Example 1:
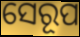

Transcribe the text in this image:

ସେରୂପ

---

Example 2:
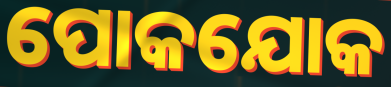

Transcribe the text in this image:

ପୋକଯୋକ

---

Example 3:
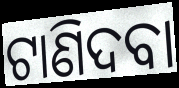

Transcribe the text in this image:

ଟାଣିଦବା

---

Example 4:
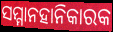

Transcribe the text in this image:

ସମ୍ମାନହାନିକାରକ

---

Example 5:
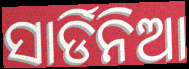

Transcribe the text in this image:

ସାର୍ଡିନିଆ